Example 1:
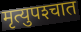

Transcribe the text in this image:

मृत्युपश्‍चात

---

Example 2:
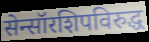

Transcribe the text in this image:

सेन्सॉरशिपविरुद्ध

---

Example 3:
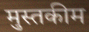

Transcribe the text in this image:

मुस्तकीम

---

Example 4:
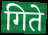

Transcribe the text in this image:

गिते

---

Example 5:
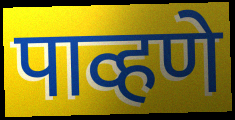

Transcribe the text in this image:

पाव्हणे